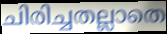
ചിരിച്ചതല്ലാതെ